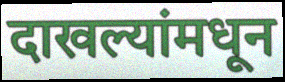
दाखल्यांमधून